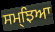
ਸਮ੍ਝਿਆ